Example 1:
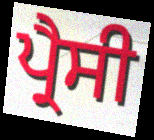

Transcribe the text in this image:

ਪ੍ਰੈਸੀ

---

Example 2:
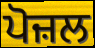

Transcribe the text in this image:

ਪੋਜ਼ਲ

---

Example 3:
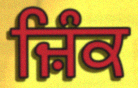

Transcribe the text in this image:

ਜ਼ਿੰਕ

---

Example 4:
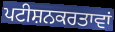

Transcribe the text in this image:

ਪਟੀਸ਼ਨਕਰਤਾਵਾਂ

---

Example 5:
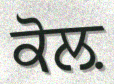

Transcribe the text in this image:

ਕੋਲ਼